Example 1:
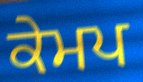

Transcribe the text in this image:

ਕੇਮਪ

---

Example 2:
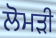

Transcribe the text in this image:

ਲੋਮੜੀ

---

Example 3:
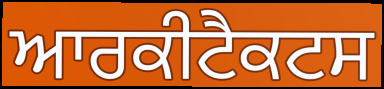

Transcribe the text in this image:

ਆਰਕੀਟੈਕਟਸ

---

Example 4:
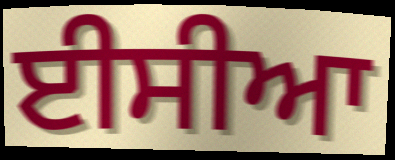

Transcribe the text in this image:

ਈਸੀਆ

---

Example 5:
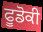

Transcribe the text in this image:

ਫੂਡੋਕੀ